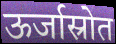
ऊर्जास्रोत